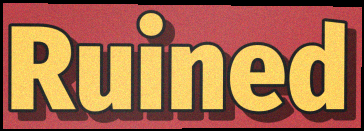
Ruined